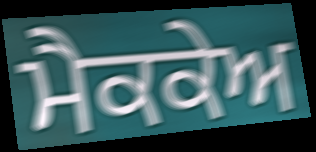
ਮੈਕਕੇਅ